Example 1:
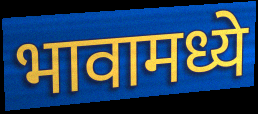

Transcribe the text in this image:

भावामध्ये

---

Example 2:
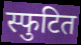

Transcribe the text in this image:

स्फुटित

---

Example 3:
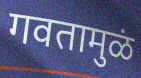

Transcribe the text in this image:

गवतामुळं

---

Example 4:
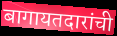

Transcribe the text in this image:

बागायतदारांची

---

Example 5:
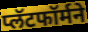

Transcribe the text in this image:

प्लॅटफॉर्मने